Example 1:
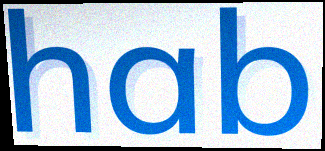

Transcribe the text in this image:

hab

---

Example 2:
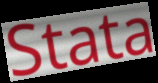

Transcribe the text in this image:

Stata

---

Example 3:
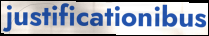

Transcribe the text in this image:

justificationibus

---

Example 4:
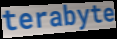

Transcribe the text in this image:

terabyte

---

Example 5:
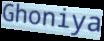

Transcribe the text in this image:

Ghoniya